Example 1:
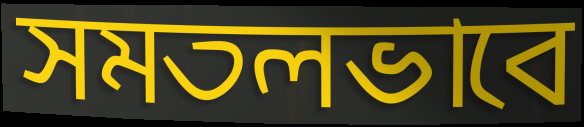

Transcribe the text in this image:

সমতলভাবে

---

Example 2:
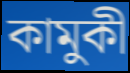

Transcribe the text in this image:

কামুকী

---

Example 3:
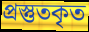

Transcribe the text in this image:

প্রস্তুতকৃত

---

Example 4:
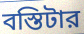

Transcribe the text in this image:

বস্তিটার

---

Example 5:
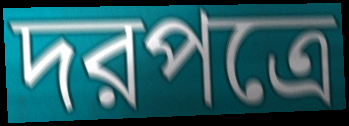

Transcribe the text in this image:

দরপত্রে